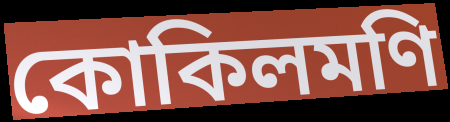
কোকিলমণি